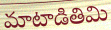
మాటాడితిమి